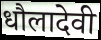
धौलादेवी